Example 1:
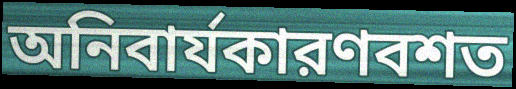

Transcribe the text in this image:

অনিবার্যকারণবশত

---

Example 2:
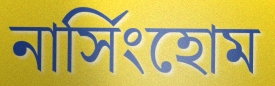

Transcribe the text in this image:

নার্সিংহোম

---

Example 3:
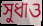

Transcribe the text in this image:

সুধাও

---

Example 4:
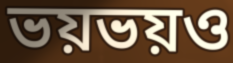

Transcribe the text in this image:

ভয়ভয়ও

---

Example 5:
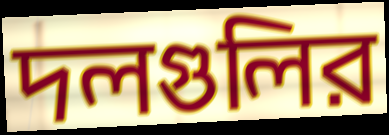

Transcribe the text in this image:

দলগুলির